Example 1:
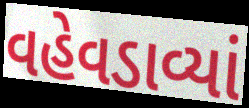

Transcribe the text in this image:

વહેવડાવ્યાં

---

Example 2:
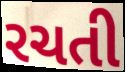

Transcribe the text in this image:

રચતી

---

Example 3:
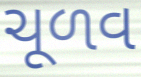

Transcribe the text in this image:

ચૂળવ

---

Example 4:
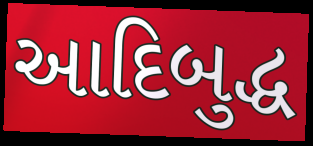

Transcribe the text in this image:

આદિબુદ્ધ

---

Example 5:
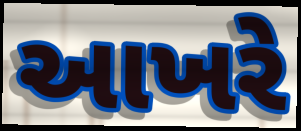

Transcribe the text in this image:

આખરે